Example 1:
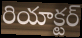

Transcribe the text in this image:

రియాక్టర్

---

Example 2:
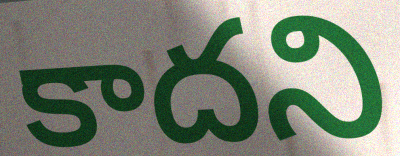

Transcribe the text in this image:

కాదని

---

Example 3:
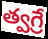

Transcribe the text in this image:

త్వగ్రే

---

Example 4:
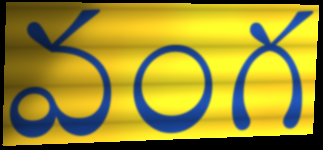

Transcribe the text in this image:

వంగ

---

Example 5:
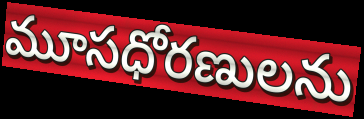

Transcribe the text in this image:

మూసధోరణులను